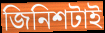
জিনিশটাই